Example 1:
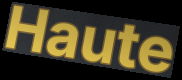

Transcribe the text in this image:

Haute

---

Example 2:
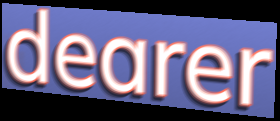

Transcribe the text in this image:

dearer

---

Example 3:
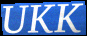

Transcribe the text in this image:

UKK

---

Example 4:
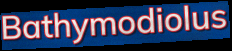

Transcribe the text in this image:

Bathymodiolus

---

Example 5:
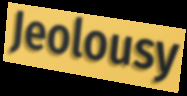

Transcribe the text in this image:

Jeolousy